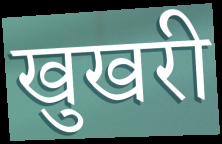
खुखरी